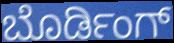
ಬೊರ್ಡಿಂಗ್